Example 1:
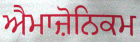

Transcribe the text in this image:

ਐਮਾਜ਼ੋਨਿਕਮ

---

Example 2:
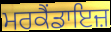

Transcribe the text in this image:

ਮਰਕੈਂਡਾਇਜ਼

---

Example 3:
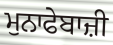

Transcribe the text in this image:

ਮੁਨਾਫੇਬਾਜ਼ੀ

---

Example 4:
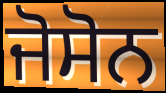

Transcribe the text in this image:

ਜੋਸੋਨ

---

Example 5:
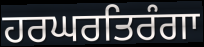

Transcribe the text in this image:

ਹਰਘਰਤਿਰੰਗਾ